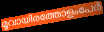
മൂവായിരത്തോളംപേർ